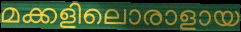
മക്കളിലൊരാളായ